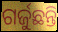
ଗର୍ଜୁଛନ୍ତି